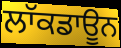
ਲਾੱਕਡਾਊਨ